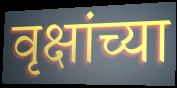
वृक्षांच्या